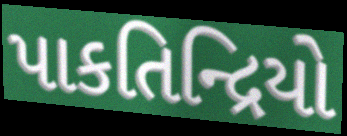
પાકતિન્દ્રિયો